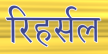
रिहर्सल